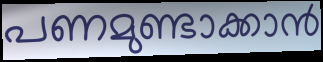
പണമുണ്ടാക്കാൻ